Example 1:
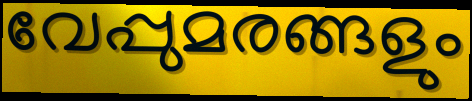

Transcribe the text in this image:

വേപ്പുമരങ്ങളും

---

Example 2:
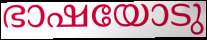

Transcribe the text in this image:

ഭാഷയോടു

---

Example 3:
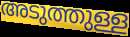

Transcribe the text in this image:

അടുത്തുള്ള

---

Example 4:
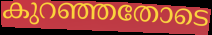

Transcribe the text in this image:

കുറഞ്ഞതോടെ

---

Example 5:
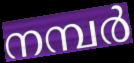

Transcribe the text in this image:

നമ്പർ